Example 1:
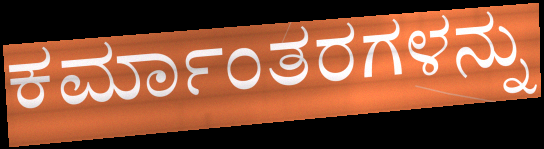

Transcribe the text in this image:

ಕರ್ಮಾಂತರಗಳನ್ನು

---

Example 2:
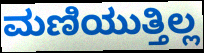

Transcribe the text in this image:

ಮಣಿಯುತ್ತಿಲ್ಲ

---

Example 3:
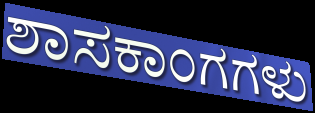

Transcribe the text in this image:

ಶಾಸಕಾಂಗಗಳು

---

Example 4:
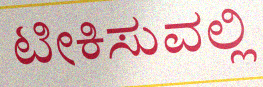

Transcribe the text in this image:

ಟೀಕಿಸುವಲ್ಲಿ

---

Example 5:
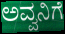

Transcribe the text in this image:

ಅವ್ವನಿಗೆ